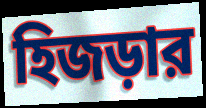
হিজড়ার